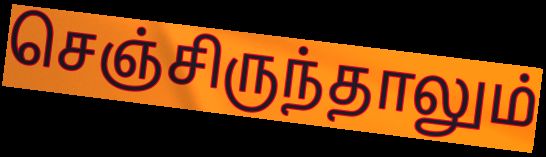
செஞ்சிருந்தாலும்